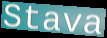
Stava